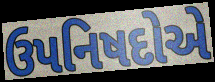
ઉપનિષદોએ